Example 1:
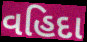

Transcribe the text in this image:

વહિદા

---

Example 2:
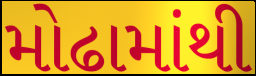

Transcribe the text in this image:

મોઢામાંથી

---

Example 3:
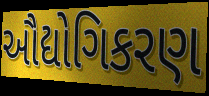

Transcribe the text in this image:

ઔદ્યોગિકરણ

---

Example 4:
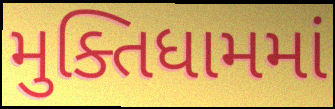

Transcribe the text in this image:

મુક્તિધામમાં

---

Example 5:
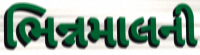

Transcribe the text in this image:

ભિન્નમાલની